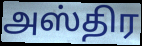
அஸ்திர